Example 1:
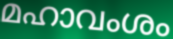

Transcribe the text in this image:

മഹാവംശം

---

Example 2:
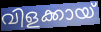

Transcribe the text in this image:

വിളക്കായ്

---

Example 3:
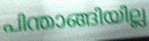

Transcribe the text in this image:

പിന്താങ്ങിയില്ല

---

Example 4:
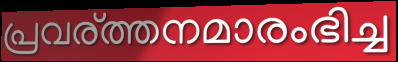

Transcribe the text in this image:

പ്രവര്ത്തനമാരംഭിച്ച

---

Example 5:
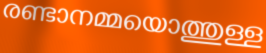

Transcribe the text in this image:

രണ്ടാനമ്മയൊത്തുള്ള